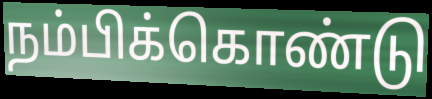
நம்பிக்கொண்டு